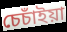
চেচাঁইয়া